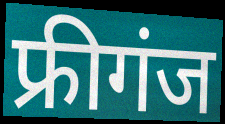
फ्रीगंज